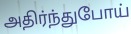
அதிர்ந்துபோய்